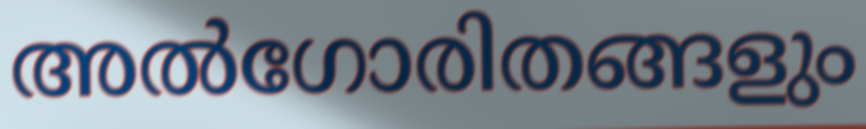
അൽഗോരിതങ്ങളും